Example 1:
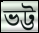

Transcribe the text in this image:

ভট্ট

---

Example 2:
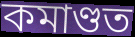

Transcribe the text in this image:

কমাণ্ডত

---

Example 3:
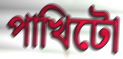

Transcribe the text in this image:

পাখিটো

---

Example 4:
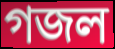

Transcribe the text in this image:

গজল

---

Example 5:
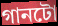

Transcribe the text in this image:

গানটো